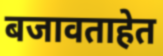
बजावताहेत